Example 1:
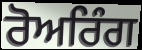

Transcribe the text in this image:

ਰੋਅਰਿੰਗ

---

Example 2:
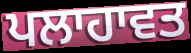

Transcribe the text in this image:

ਪਲਾਹਾਵਤ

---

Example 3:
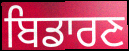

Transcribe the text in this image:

ਬਿਡਾਰਣ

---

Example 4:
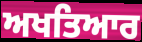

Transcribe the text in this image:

ਅਖਤਿਆਰ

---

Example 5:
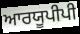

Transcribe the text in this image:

ਆਰਯੂਪੀਪੀ